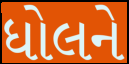
ધોલને